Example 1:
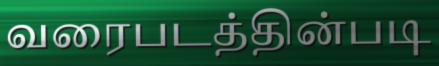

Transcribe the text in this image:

வரைபடத்தின்படி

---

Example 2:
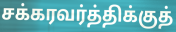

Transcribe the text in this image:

சக்கரவர்த்திக்குத்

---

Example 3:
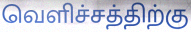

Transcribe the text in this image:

வெளிச்சத்திற்கு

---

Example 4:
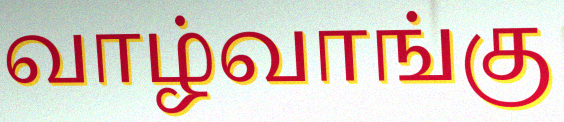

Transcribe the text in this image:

வாழ்வாங்கு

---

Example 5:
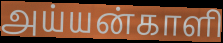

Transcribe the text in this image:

அய்யன்காளி